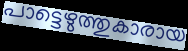
പാട്ടെഴുത്തുകാരായ